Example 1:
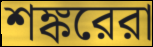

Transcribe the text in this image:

শঙ্করেরা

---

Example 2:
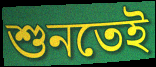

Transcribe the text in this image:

শুনতেই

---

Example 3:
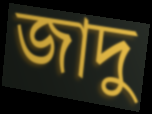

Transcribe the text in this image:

জাদু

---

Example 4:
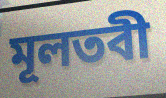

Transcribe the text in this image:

মূলতবী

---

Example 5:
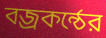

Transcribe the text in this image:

বজ্রকন্ঠের